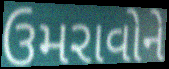
ઉમરાવોને